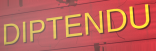
DIPTENDU